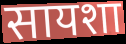
सायशा